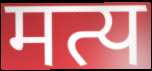
मत्य